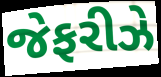
જેફરીઝે